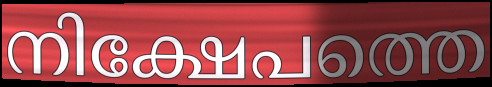
നിക്ഷേപത്തെ